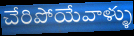
చేరిపోయేవాళ్ళు